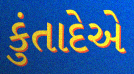
કુંતાદેએ